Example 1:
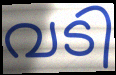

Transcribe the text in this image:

വടി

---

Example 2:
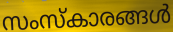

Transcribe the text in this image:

സംസ്കാരങ്ങൾ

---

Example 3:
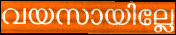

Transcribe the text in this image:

വയസായില്ലേ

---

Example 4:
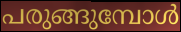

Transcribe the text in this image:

പരുങ്ങുമ്പോൾ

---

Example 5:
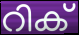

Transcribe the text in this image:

റിക്